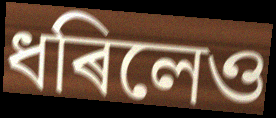
ধৰিলেও